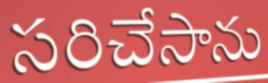
సరిచేసాను